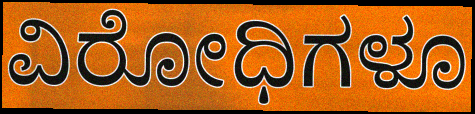
ವಿರೋಧಿಗಳೂ